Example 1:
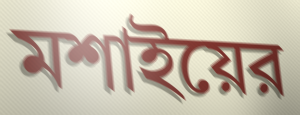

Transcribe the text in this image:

মশাইয়ের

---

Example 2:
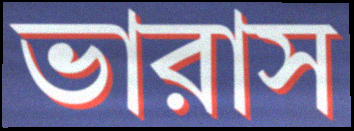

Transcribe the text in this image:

ভারাস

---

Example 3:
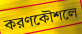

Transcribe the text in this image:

করণকৌশলে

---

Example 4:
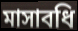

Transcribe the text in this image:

মাসাবধি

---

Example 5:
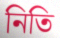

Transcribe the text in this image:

নিতি